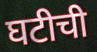
घटीची